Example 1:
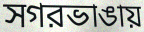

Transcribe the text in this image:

সগরভাঙায়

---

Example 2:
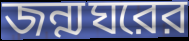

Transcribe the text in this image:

জন্মঘরের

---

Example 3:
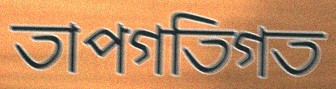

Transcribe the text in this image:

তাপগতিগত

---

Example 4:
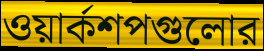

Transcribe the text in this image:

ওয়ার্কশপগুলোর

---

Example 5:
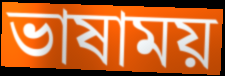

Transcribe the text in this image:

ভাষাময়